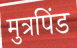
मुत्रपिंड